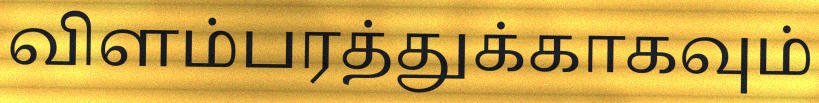
விளம்பரத்துக்காகவும்